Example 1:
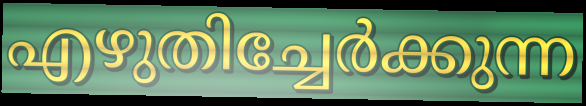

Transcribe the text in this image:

എഴുതിച്ചേർക്കുന്ന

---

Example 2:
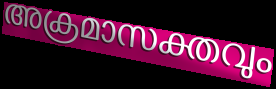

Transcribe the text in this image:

അക്രമാസക്തവും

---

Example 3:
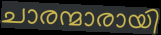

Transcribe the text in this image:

ചാരന്മാരായി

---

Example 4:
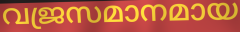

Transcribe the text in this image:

വജ്രസമാനമായ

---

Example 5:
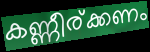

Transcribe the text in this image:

കണ്ണീര്ക്കണം